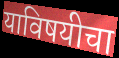
याविषयीचा